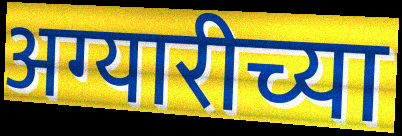
अग्यारीच्या